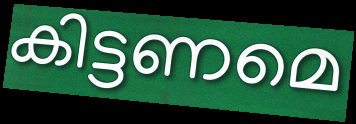
കിട്ടണമെ